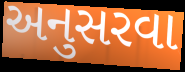
અનુસરવા